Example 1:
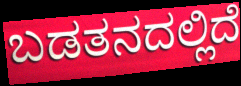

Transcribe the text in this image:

ಬಡತನದಲ್ಲಿದೆ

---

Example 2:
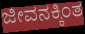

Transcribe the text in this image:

ಜೀವನಕ್ಕಿಂತ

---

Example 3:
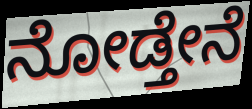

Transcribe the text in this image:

ನೋಡ್ತೇನೆ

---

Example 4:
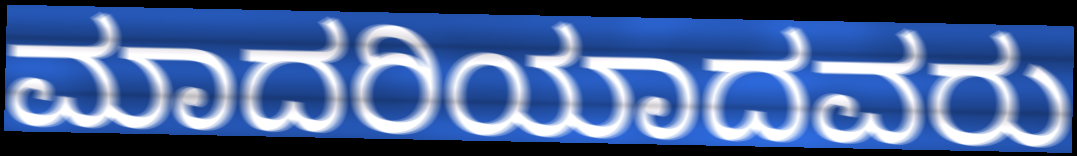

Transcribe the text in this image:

ಮಾದರಿಯಾದವರು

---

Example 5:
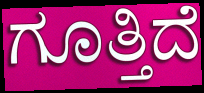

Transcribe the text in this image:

ಗೂತ್ತಿದೆ